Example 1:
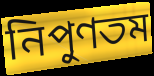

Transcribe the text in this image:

নিপুণতম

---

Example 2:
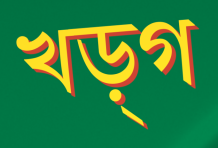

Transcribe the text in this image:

খড়্‌গ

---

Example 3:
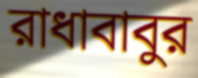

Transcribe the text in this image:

রাধাবাবুর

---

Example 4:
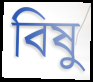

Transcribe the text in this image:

বিষু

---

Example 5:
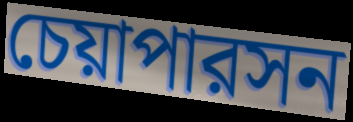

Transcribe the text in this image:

চেয়াপারসন